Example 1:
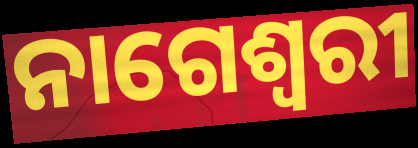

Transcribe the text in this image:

ନାଗେଶ୍ୱରୀ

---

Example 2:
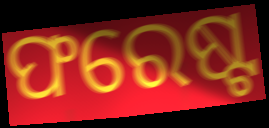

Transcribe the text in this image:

ଫରେଷ୍ଟ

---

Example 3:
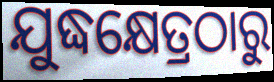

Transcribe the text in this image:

ଯୁଦ୍ଧକ୍ଷେତ୍ରଠାରୁ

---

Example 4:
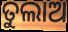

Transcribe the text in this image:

ତୁଲାଅ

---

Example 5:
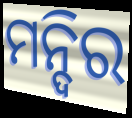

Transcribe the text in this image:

ମନ୍ଦିର